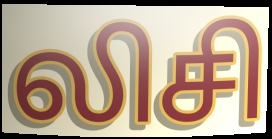
லிசி